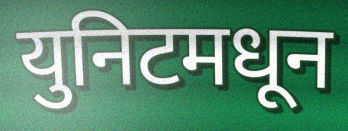
युनिटमधून